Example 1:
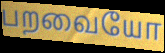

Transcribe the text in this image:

பறவையோ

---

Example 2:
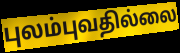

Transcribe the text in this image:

புலம்புவதில்லை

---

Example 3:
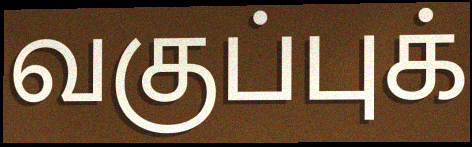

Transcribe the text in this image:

வகுப்புக்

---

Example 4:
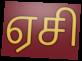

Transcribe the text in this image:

ஏசி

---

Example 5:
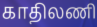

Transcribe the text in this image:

காதிலணி